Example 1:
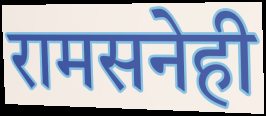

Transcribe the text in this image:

रामसनेही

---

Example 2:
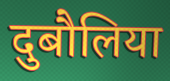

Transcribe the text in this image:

दुबौलिया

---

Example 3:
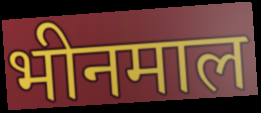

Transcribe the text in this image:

भीनमाल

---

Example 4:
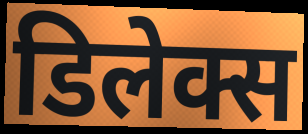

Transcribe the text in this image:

डिलेक्स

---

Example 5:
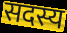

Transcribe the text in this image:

सदस्य